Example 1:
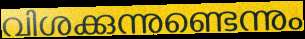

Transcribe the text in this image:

വിശക്കുന്നുണ്ടെന്നും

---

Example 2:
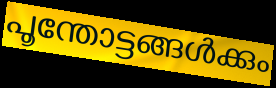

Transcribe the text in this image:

പൂന്തോട്ടങ്ങൾക്കും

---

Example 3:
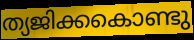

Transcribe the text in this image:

ത്യജിക്കകൊണ്ടു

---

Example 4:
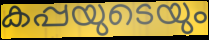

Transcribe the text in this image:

കപ്പയുടെയും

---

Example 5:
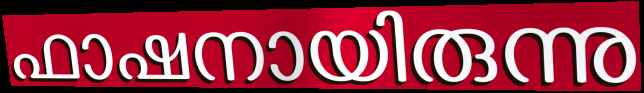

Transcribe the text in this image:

ഫാഷനായിരുന്നു